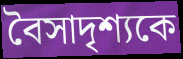
বৈসাদৃশ্যকে